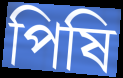
পিষি